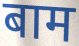
बाम